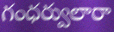
గంధర్వులారా